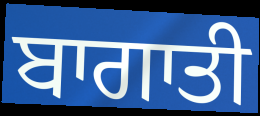
ਬਾਗਾਤੀ